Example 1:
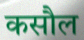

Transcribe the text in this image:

कसौल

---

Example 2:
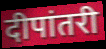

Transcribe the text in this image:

दीपांतरी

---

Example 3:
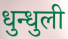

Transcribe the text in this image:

धुन्धुली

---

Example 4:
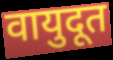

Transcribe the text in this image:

वायुदूत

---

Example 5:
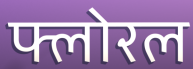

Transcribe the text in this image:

फ्लोरल